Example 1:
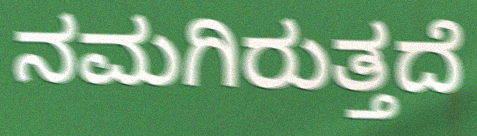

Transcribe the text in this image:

ನಮಗಿರುತ್ತದೆ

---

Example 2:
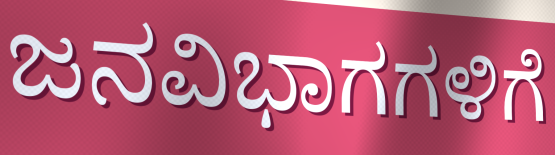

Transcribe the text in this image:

ಜನವಿಭಾಗಗಳಿಗೆ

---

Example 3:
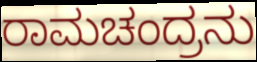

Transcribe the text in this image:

ರಾಮಚಂದ್ರನು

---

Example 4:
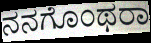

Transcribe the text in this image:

ನನಗೊಂಥರಾ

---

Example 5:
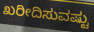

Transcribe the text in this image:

ಖರೀದಿಸುವಷ್ಟು